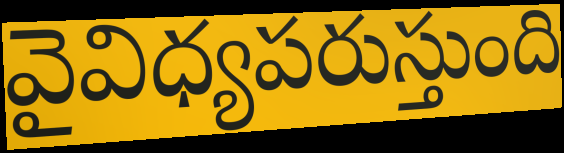
వైవిధ్యపరుస్తుంది